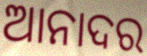
ଆନାଦର